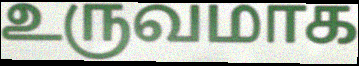
உருவமாக